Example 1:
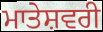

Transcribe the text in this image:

ਮਾਤੇਸ਼ਵਰੀ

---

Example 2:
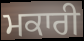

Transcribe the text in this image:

ਮਕਾਰੀ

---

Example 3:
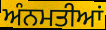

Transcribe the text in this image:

ਅੰਨਮਤੀਆਂ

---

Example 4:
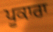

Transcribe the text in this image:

ਪੂਕਾਰਾ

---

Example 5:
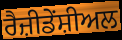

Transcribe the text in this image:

ਰੈਜ਼ੀਡੇਂਸ਼ੀਅਲ